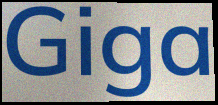
Giga